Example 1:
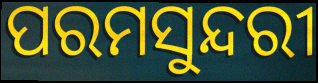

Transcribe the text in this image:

ପରମସୁନ୍ଦରୀ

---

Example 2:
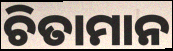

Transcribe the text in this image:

ଚିତାମାନ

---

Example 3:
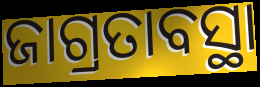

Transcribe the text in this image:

ଜାଗ୍ରତାବସ୍ଥା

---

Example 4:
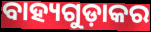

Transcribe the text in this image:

ବାହ୍ୟଗୁଡ଼ାକର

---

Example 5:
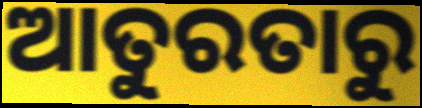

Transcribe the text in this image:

ଆତୁରତାରୁ